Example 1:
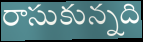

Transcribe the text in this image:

రాసుకున్నది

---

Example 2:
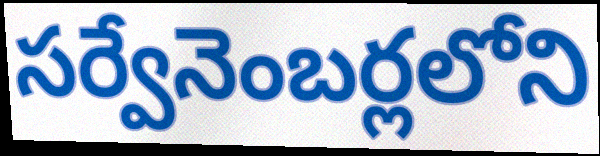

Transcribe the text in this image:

సర్వేనెంబర్లలోని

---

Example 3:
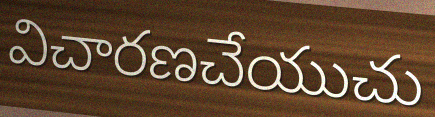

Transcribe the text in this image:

విచారణచేయుచు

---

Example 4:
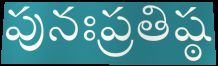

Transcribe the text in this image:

పునఃప్రతిష్ఠ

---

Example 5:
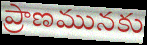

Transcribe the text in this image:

ప్రాణమునకు